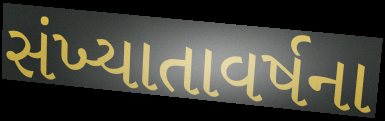
સંખ્યાતાવર્ષના